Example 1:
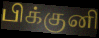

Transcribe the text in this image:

பிக்குனி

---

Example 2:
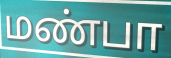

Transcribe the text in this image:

மண்பா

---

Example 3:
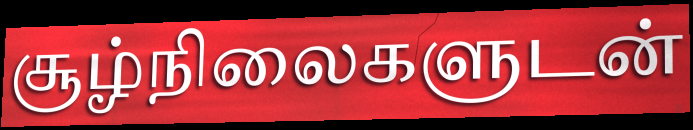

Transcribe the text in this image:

சூழ்நிலைகளுடன்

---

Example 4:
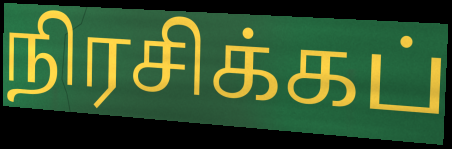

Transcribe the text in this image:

நிரசிக்கப்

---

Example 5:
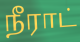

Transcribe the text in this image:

நீராட்